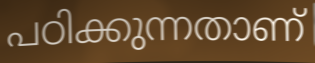
പഠിക്കുന്നതാണ്